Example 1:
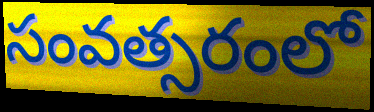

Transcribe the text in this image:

సంవత్సరంలో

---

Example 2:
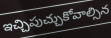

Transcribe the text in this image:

ఇచ్చిపుచ్చుకోవాల్సిన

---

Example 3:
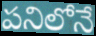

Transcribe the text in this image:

పనిలోనే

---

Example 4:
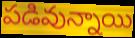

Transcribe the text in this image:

పడివున్నాయి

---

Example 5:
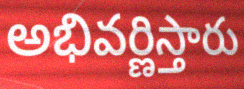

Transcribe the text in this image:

అభివర్ణిస్తారు